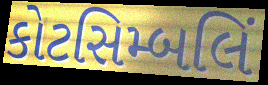
કોટસિમ્બલિં